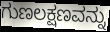
ಗುಣಲಕ್ಷಣವನ್ನು